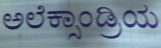
ಅಲೆಕ್ಸಾಂಡ್ರಿಯ